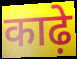
काढ़े